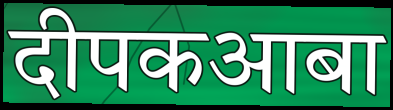
दीपकआबा